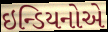
ઇન્ડિયનોએ